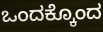
ಒಂದಕ್ಕೊಂದ